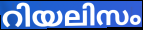
റിയലിസം